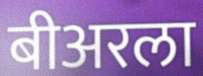
बीअरला